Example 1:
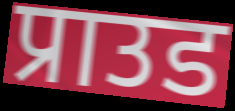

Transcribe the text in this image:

प्राउड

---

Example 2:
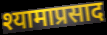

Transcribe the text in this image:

श्यामाप्रसाद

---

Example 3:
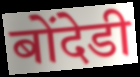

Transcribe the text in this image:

बोंदेडी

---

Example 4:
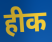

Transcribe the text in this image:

हीक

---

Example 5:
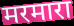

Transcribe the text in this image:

मरमारा